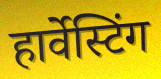
हार्वेस्टिंग